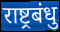
राष्ट्रबंधु